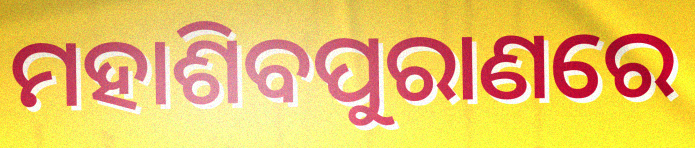
ମହାଶିବପୁରାଣରେ